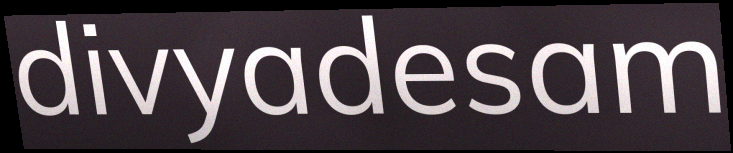
divyadesam